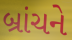
બ્રાંચને